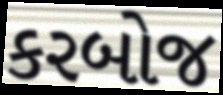
કરબોજ